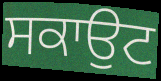
ਸਕਾਉਟ